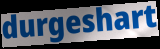
durgeshart